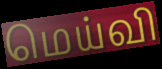
மெய்வி